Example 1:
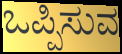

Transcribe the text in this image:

ಒಪ್ಪಿಸುವ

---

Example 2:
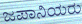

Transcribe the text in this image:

ಜಪಾನಿಯರು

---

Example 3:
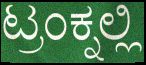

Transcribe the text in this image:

ಟ್ರಂಕ್ನಲ್ಲಿ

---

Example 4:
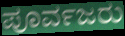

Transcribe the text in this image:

ಪೂರ್ವಜರು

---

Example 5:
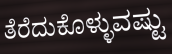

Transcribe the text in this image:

ತೆರೆದುಕೊಳ್ಳುವಷ್ಟು